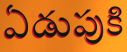
ఏడుపుకి